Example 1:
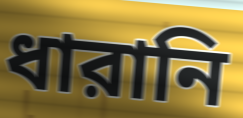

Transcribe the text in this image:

ধারানি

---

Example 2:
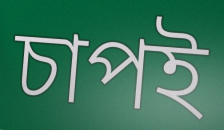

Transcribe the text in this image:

চাপই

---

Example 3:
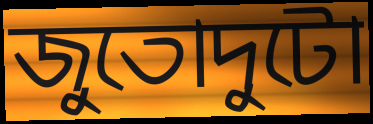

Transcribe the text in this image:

জুতোদুটো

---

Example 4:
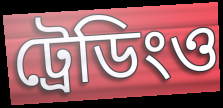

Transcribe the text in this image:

ট্রেডিংও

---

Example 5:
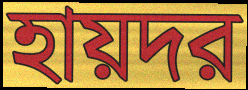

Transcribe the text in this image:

হায়দর